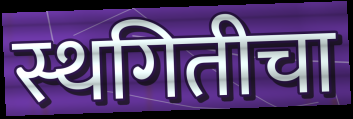
स्थगितीचा